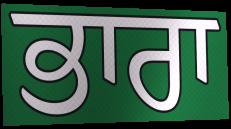
ਭਾਰਾ